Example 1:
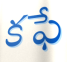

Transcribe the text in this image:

కఫే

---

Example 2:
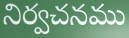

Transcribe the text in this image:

నిర్వచనము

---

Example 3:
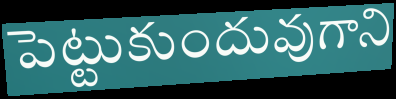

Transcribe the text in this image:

పెట్టుకుందువుగాని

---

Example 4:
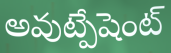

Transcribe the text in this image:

అవుట్పేషెంట్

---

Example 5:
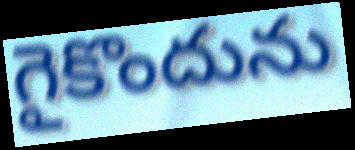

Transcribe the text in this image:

గైకొందును